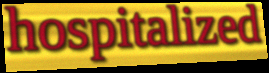
hospitalized